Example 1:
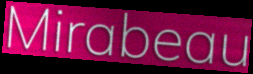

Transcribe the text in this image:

Mirabeau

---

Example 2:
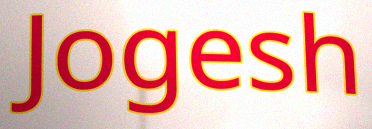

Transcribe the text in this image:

Jogesh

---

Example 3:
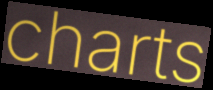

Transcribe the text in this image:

charts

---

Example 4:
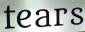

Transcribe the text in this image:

tears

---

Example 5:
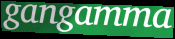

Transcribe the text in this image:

gangamma